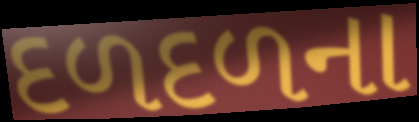
દળદળના